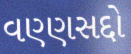
વણ્ણસદ્દો